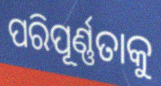
ପରିପୂର୍ଣ୍ଣତାକୁ